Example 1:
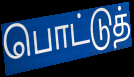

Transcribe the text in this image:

பொட்டுத்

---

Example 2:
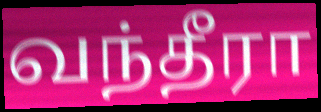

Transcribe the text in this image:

வந்தீரா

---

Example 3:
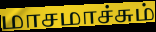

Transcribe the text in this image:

மாசமாச்சும்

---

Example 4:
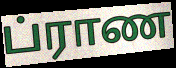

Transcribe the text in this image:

ப்ராண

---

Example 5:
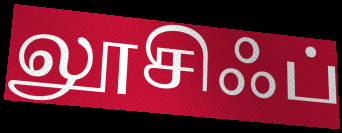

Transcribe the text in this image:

லூசிஃப்